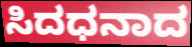
ಸಿದಧನಾದ